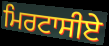
ਮਿਰਟਾਸੀਏ